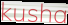
kusha